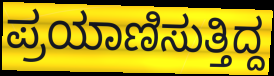
ಪ್ರಯಾಣಿಸುತ್ತಿದ್ದ